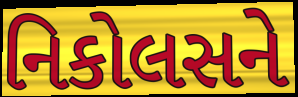
નિકોલસને